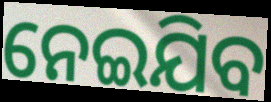
ନେଇଯିବ